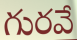
గురవే